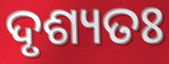
ଦୃଶ୍ୟତଃ